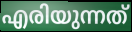
എരിയുന്നത്